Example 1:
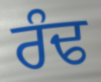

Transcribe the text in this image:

ਰੰਢ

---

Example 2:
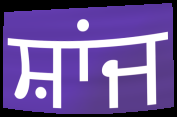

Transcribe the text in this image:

ਸ਼ਾਂਜ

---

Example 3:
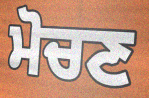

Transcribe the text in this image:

ਮੋਚਣ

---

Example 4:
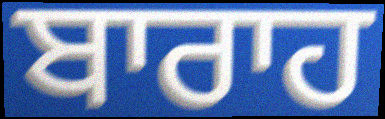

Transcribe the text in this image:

ਬਾਰਾਹ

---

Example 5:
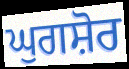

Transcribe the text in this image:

ਘੁਗਸ਼ੋਰ